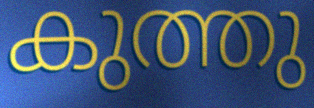
കുത്തു